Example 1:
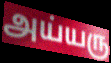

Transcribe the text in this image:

அய்யரு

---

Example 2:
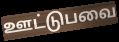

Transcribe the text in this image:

ஊட்டுபவை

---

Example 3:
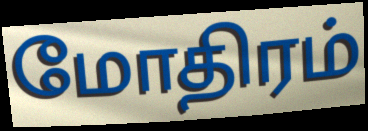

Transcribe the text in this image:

மோதிரம்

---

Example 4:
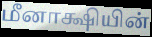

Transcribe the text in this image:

மீனாக்ஷியின்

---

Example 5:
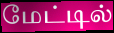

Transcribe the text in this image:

மேட்டில்